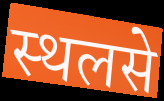
स्थलसे